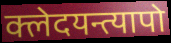
क्लेदयन्त्यापो